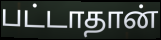
பட்டாதான்